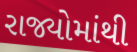
રાજ્યોમાંથી